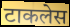
टाकलेस